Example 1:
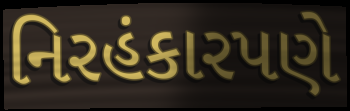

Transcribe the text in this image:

નિરહંકારપણે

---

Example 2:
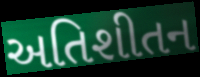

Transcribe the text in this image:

અતિશીતન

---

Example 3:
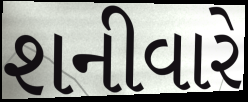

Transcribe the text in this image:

શનીવારે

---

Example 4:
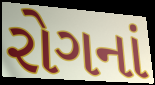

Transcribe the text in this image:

રોગનાં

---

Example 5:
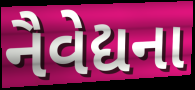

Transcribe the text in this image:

નૈવેદ્યના